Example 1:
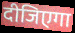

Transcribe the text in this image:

दीजिएगा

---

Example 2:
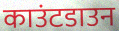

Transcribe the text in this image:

काउंटडाउन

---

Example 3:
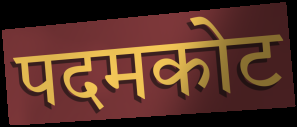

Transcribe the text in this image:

पदमकोट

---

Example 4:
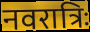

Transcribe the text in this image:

नवरात्रिः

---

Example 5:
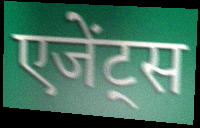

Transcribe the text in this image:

एजेंट्स